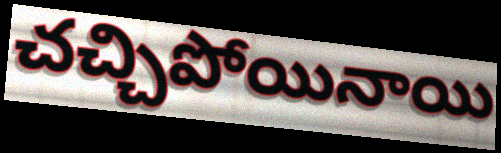
చచ్చిపోయినాయి